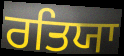
ਰਤਿਯਾ